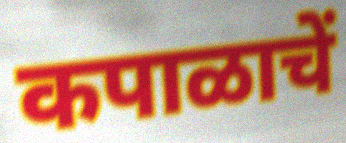
कपाळाचें